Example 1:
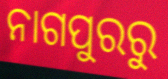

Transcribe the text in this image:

ନାଗପୁରରୁ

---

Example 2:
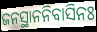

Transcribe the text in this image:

ଜନସ୍ଥାନନିବାସିନଃ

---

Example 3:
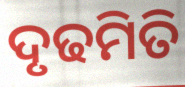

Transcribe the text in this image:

ଦୃଢମିତି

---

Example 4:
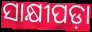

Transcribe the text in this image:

ସାକ୍ଷୀପଡ଼ା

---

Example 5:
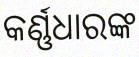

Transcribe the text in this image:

କର୍ଣ୍ଣଧାରଙ୍କ